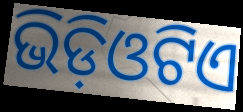
ଭିଡ଼ିଓଟିଏ